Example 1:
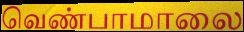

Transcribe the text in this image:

வெண்பாமாலை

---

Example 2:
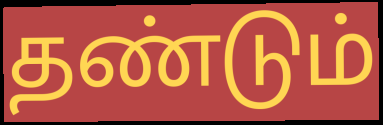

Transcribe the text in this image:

தண்டும்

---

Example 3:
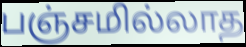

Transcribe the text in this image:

பஞ்சமில்லாத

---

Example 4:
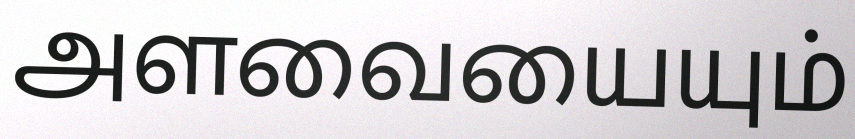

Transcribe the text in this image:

அளவையையும்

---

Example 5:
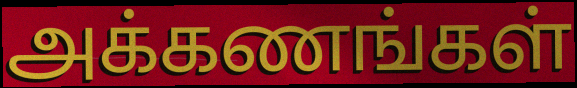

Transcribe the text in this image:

அக்கணங்கள்